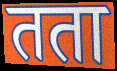
तता